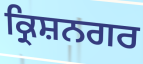
ਕ੍ਰਿਸ਼ਨਗਰ